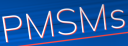
PMSMs